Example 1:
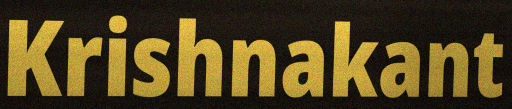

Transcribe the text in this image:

Krishnakant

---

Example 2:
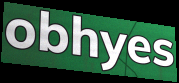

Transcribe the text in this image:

obhyes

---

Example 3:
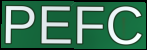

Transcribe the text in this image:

PEFC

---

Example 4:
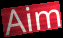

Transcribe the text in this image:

Aim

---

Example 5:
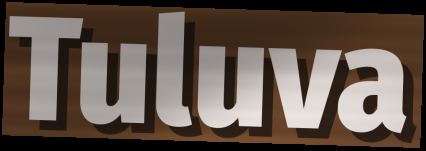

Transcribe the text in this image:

Tuluva